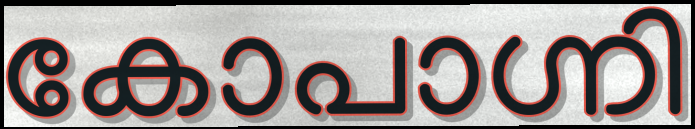
കോപാഗ്നി